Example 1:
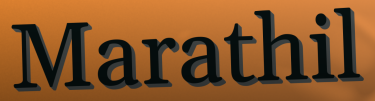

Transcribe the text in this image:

Marathil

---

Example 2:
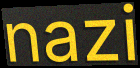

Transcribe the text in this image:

nazi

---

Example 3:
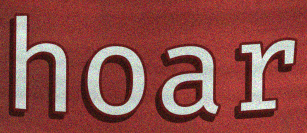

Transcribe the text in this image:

hoar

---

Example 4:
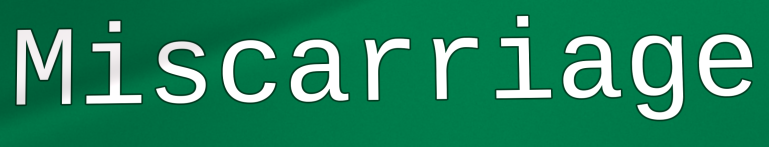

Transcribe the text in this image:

Miscarriage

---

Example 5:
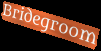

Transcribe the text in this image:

Bridegroom